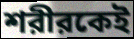
শরীরকেই